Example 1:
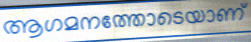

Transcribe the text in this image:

ആഗമനത്തോടെയാണ്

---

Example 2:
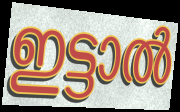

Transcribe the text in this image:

ഇട്ടാൽ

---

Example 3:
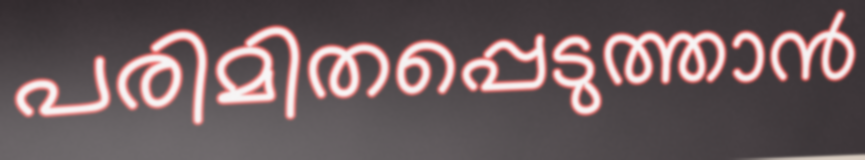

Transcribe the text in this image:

പരിമിതപ്പെടുത്താൻ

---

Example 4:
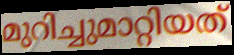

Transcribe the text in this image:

മുറിച്ചുമാറ്റിയത്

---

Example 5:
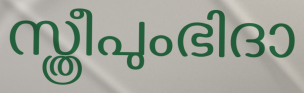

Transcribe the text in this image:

സ്ത്രീപുംഭിദാ